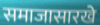
समाजासारखे